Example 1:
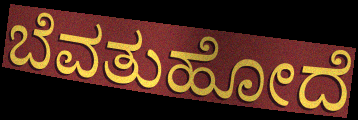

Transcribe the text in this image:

ಬೆವತುಹೋದೆ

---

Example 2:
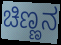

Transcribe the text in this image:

ಚಿಣ್ಣನ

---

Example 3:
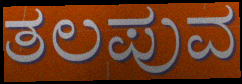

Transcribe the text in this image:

ತಲಪುವ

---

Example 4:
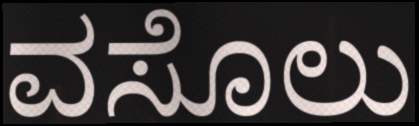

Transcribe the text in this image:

ವಸೊಲು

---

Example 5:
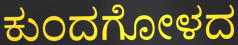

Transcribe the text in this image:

ಕುಂದಗೋಳದ